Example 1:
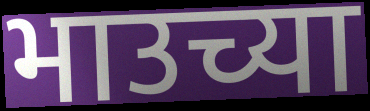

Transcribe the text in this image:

भाउच्या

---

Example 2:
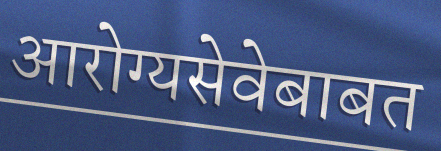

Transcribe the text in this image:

आरोग्यसेवेबाबत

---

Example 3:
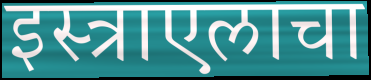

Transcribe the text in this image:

इस्त्राएलाचा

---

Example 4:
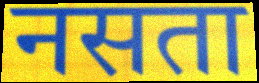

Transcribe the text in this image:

नसता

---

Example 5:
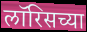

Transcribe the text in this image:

लॉरिसच्या